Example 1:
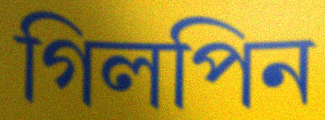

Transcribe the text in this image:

গিলপিন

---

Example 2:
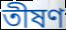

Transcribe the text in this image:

তীষণ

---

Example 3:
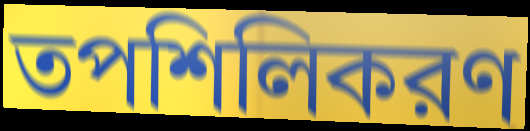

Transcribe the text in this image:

তপশিলিকরণ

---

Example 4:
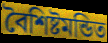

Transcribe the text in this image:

বৈশিষ্টমন্ডিত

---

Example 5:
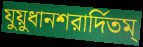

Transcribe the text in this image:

যুয়ুধানশরার্দিতম্